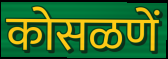
कोसळणें